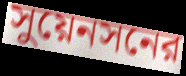
সুয়েনসনের